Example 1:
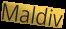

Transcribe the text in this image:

Maldiv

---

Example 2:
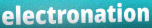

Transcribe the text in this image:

electronation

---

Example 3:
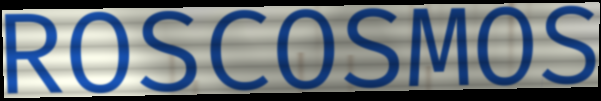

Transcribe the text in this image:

ROSCOSMOS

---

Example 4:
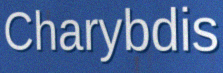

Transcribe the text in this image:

Charybdis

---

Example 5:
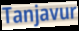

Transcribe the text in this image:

Tanjavur